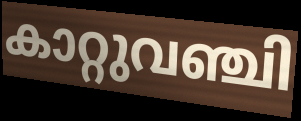
കാറ്റുവഞ്ചി